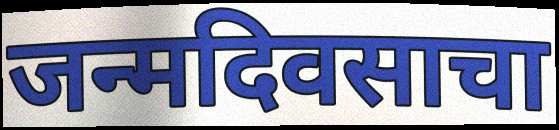
जन्मदिवसाचा